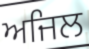
ਅਜਿਲ